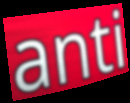
anti